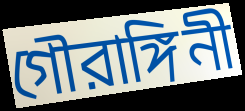
গৌরাঙ্গিনী